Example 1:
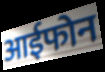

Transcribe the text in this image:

आईफोन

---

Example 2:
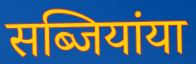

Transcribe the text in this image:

सब्जियांया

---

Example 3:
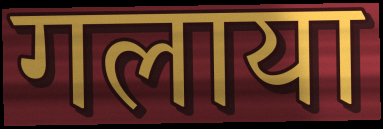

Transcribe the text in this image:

गलाया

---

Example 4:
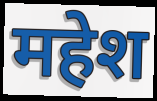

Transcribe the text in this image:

महेश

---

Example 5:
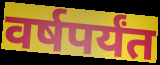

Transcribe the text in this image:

वर्षपर्यंत